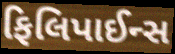
ફિલિપાઈન્સ